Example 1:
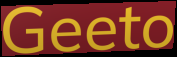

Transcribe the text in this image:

Geeto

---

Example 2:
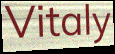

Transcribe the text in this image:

Vitaly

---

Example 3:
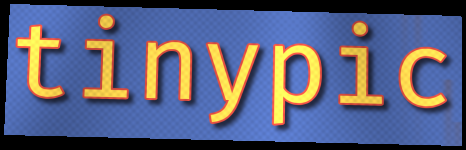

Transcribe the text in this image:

tinypic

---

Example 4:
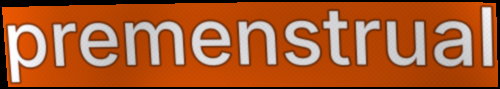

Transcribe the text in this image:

premenstrual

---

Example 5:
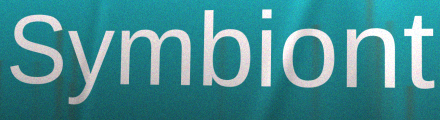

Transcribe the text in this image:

Symbiont